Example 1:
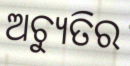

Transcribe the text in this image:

ଅଚ୍ୟୁତିର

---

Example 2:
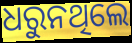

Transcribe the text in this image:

ଧରୁନଥିଲେ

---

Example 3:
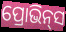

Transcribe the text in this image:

ପ୍ରୋଭିନ୍‌ସ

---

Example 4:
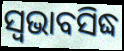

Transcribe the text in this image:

ସ୍ଵଭାବସିଦ୍ଧ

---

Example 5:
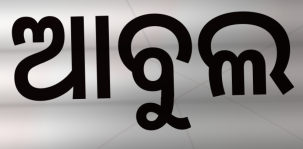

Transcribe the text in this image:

ଆବୁଲ